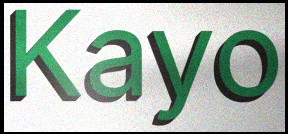
Kayo